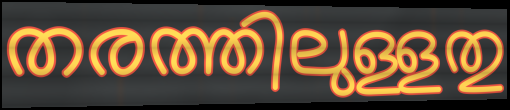
തരത്തിലുള്ളതു